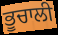
ਭੂਚਾਲੀ